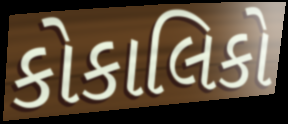
કોકાલિકો